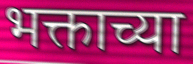
भक्ताच्या